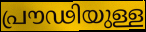
പ്രൗഢിയുള്ള